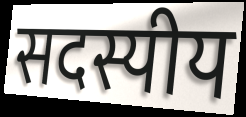
सदस्यीय